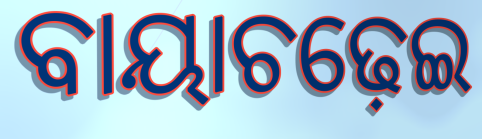
ବାୟାଚଢ଼େଇ